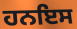
ਹਨਇਸ